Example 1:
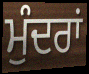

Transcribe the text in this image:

ਮੁੰਦਰਾਂ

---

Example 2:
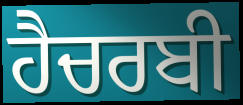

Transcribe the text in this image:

ਹੈਚਰਬੀ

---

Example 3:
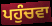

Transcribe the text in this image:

ਪਹੁੰਚਵਾ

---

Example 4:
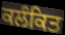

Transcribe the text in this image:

ਕਲੰਕਿਤ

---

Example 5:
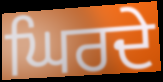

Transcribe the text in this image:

ਘਿਰਦੇ